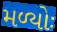
મળ્યોઃ